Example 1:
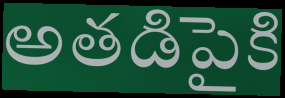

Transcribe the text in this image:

అతడిపైకి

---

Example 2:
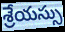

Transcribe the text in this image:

శ్రేయస్సు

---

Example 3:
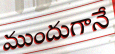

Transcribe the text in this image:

ముందుగానే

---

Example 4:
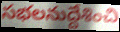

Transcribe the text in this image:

సభలనుద్దేశించి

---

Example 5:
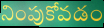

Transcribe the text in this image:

నింపుకోవడం